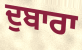
ਦੁਬਾਰਾ